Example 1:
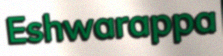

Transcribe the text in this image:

Eshwarappa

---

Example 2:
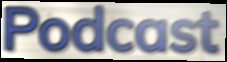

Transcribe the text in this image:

Podcast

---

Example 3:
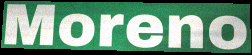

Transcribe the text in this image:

Moreno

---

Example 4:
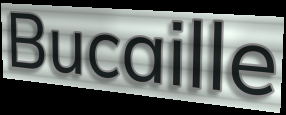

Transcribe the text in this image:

Bucaille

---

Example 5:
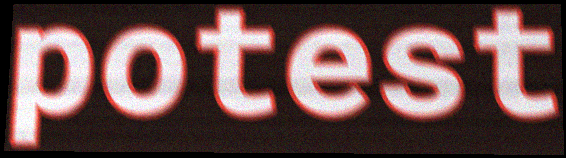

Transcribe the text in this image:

potest